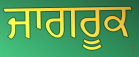
ਜਾਗਰੂਕ